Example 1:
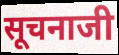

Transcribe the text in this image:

सूचनाजी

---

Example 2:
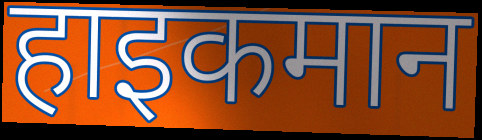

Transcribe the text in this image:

हाइकमान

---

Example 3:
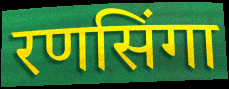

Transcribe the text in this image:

रणसिंगा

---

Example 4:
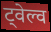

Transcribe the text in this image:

ट्वेल्व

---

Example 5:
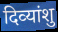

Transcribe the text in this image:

दिव्‍यांशु